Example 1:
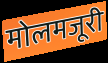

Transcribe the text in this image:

मोलमजूरी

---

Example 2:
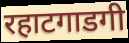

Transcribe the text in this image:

रहाटगाडगी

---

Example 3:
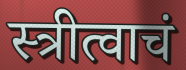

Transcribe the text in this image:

स्त्रीत्वाचं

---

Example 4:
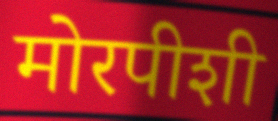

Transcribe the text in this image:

मोरपीशी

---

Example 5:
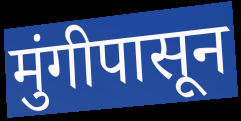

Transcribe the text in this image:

मुंगीपासून